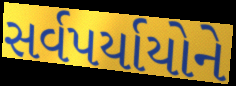
સર્વપર્યાયોને